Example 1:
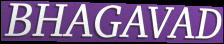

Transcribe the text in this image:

BHAGAVAD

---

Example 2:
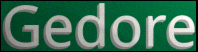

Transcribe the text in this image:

Gedore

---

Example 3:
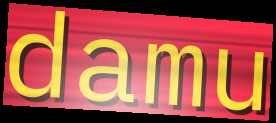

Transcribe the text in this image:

damu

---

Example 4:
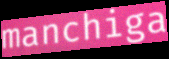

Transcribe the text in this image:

manchiga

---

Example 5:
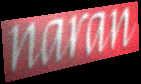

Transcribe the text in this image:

naran